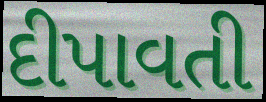
દીપાવતી